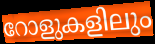
റോളുകളിലും